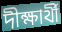
দীক্ষার্থী